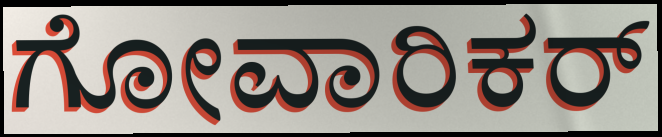
ಗೋವಾರಿಕರ್